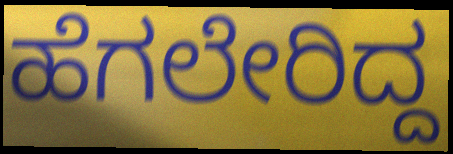
ಹೆಗಲೇರಿದ್ದ